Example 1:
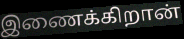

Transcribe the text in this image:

இணைக்கிறான்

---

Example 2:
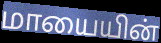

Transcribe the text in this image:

மாயையின்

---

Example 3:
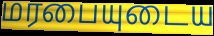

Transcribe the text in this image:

மரபையுடைய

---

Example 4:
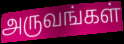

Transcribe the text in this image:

அருவங்கள்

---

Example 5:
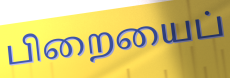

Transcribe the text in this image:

பிறையைப்